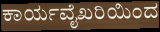
ಕಾರ್ಯವೈಖರಿಯಿಂದ